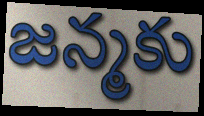
జన్మకు